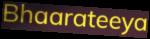
Bhaarateeya